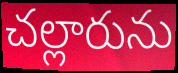
చల్లారును